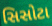
સિસોટા